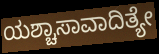
ಯಶ್ಚಾಸಾವಾದಿತ್ಯೇ